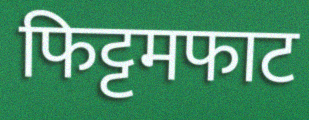
फिट्टमफाट